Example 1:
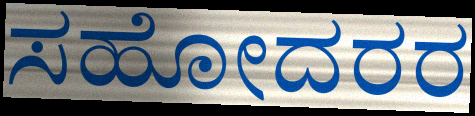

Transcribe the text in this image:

ಸಹೋದರರ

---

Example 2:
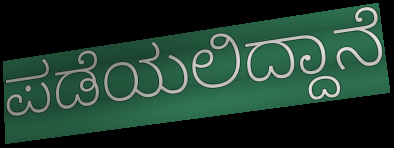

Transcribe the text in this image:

ಪಡೆಯಲಿದ್ದಾನೆ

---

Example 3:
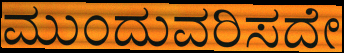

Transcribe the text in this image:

ಮುಂದುವರಿಸದೇ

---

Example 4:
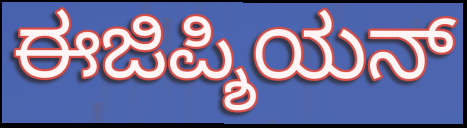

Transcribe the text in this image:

ಈಜಿಪ್ಶಿಯನ್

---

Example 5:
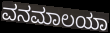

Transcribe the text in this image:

ವನಮಾಲಯಾ